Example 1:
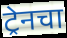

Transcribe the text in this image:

ट्रेनचा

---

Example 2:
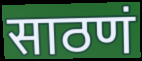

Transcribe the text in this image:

साठणं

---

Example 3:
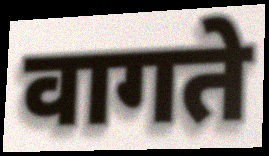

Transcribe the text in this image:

वागते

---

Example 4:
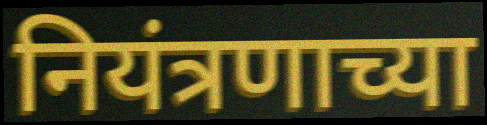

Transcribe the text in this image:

नियंत्रणाच्या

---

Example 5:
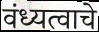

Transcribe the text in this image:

वंध्यत्वाचे